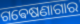
ଗଵେଷଣାଗାର